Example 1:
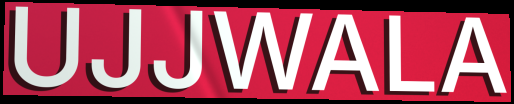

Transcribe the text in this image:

UJJWALA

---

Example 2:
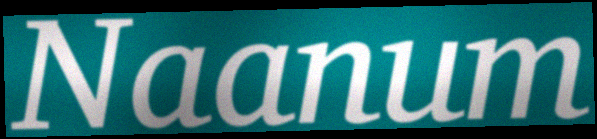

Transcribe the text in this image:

Naanum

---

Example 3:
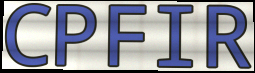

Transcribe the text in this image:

CPFIR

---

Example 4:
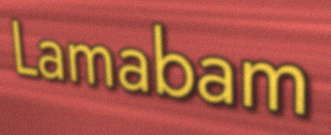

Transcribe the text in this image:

Lamabam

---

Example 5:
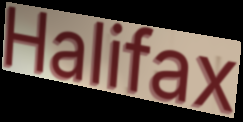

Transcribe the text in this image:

Halifax